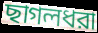
ছাগলধরা